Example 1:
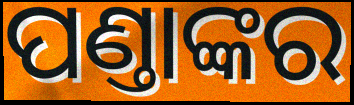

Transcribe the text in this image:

ପଣ୍ତାଙ୍କର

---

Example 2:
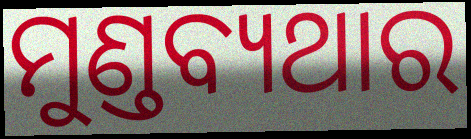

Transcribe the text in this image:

ମୁଣ୍ଡବ୍ୟଥାର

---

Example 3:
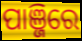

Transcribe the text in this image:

ପାଞ୍ଜିରେ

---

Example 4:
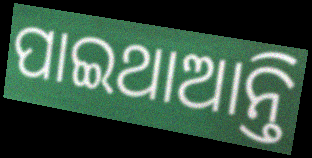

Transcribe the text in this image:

ପାଇଥାଆନ୍ତି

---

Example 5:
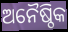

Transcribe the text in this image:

ଅନୈଷ୍ଠିକ